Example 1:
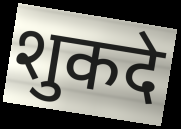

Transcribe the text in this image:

शुकदे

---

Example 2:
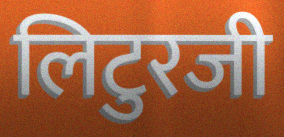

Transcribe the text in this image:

लिटुरजी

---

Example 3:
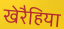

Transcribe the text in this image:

खेरैहिया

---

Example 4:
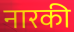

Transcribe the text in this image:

नारकी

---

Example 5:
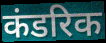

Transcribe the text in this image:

कंडरिक